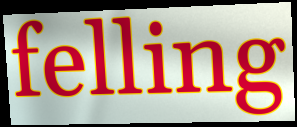
felling